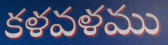
కళవళము